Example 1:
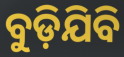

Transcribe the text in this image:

ବୁଡ଼ିଯିବି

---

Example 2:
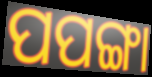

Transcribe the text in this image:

ପପଙ୍ଗା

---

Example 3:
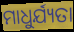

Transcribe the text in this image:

ମାଧୁର୍ଯ୍ୟତା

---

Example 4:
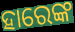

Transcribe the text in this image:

ହାରେଙ୍କ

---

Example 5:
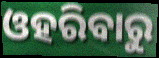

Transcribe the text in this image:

ଓହରିବାରୁ